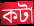
কটা